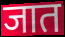
जात